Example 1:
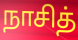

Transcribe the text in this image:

நாசித்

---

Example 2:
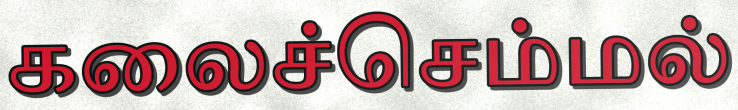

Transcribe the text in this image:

கலைச்செம்மல்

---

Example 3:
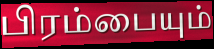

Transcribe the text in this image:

பிரம்பையும்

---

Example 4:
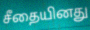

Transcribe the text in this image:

சீதையினது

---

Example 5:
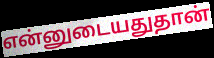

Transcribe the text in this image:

என்னுடையதுதான்